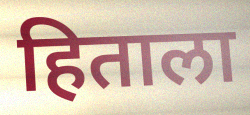
हिताला